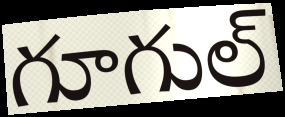
గూగుల్